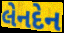
લેનદેન